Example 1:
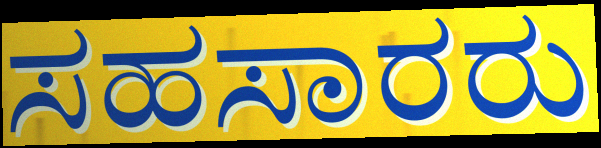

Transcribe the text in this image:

ಸಹಸಾರರು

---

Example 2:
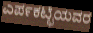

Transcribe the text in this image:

ಎರ್ಪಕಟ್ಟೆಯವರ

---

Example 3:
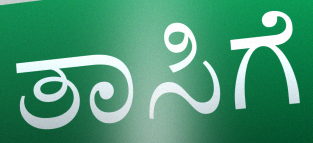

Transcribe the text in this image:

ತಾಸಿಗೆ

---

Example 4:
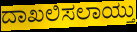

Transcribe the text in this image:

ದಾಖಲಿಸಲಾಯ್ತು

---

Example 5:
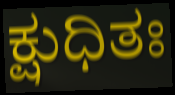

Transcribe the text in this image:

ಕ್ಷುಧಿತಃ